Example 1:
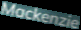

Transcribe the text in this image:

Mackenzie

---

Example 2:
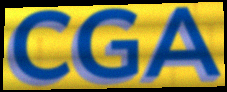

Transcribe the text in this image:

CGA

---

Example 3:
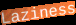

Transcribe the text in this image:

Laziness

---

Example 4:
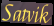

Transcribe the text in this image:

Satvik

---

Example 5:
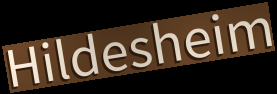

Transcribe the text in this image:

Hildesheim